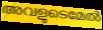
അവളുടെമേൽ